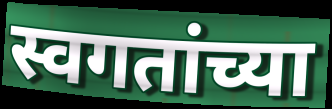
स्वगतांच्या